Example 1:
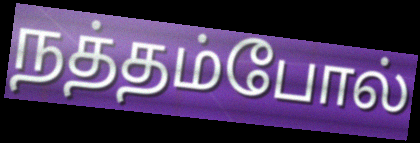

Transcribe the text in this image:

நத்தம்போல்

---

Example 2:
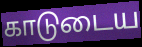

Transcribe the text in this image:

காடுடைய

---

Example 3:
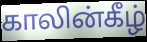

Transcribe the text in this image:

காலின்கீழ்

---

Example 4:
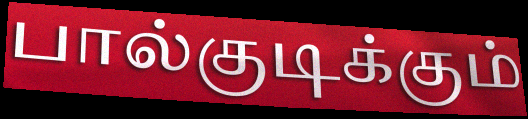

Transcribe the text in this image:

பால்குடிக்கும்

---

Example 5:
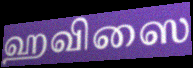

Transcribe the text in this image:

ஹவிஸை